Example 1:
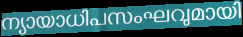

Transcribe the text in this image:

ന്യായാധിപസംഘവുമായി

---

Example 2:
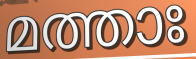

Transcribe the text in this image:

മത്താഃ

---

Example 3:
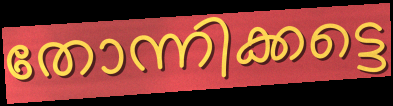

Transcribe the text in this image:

തോന്നിക്കട്ടെ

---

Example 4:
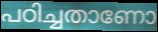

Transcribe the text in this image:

പഠിച്ചതാണോ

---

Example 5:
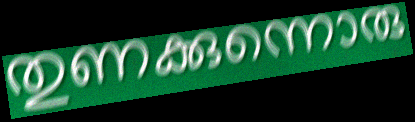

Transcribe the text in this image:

തുണക്കുന്നൊരു